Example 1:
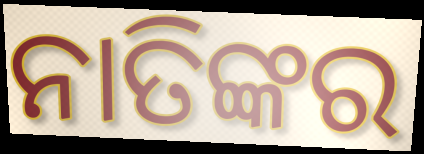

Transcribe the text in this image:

ନାତିଙ୍କର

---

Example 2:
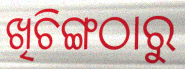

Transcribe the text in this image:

ଖିଚିଙ୍ଗଠାରୁ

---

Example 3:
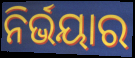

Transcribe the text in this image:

ନିର୍ଭୟାର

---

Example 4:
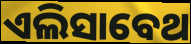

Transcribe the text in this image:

ଏଲିସାବେଥ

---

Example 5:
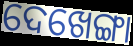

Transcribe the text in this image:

ଦେଖେଙ୍ଗା